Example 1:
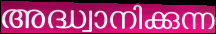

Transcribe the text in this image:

അദ്ധ്വാനിക്കുന്ന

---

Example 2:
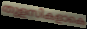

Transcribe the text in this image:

തുളസികളാകെ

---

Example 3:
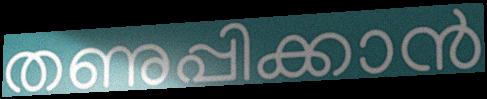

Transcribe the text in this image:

തണുപ്പിക്കാൻ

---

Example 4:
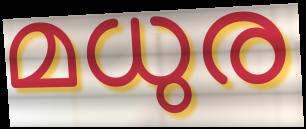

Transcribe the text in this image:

മധുര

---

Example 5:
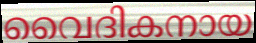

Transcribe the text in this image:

വൈദികനായ